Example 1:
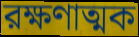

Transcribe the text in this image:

রক্ষণাত্মক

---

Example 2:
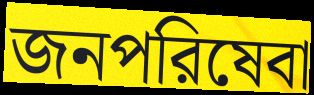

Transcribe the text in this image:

জনপরিষেবা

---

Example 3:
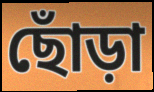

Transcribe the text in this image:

ছোঁড়া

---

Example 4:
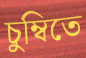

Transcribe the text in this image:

চুম্বিতে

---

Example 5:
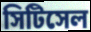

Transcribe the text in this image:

সিটিসেল